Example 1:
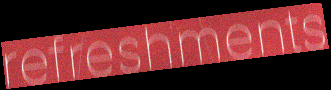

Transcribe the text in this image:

refreshments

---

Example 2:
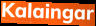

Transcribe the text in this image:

Kalaingar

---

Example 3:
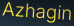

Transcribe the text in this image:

Azhagin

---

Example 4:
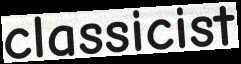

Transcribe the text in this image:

classicist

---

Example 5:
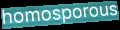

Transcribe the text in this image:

homosporous